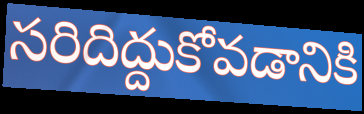
సరిదిద్దుకోవడానికి